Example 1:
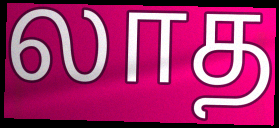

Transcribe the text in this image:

லாத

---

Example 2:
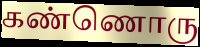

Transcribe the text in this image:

கண்ணொரு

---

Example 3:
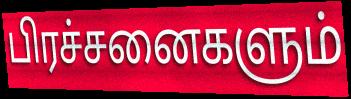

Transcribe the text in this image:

பிரச்சனைகளும்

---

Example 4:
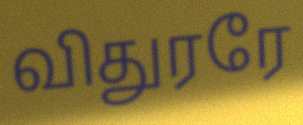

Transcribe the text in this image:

விதுரரே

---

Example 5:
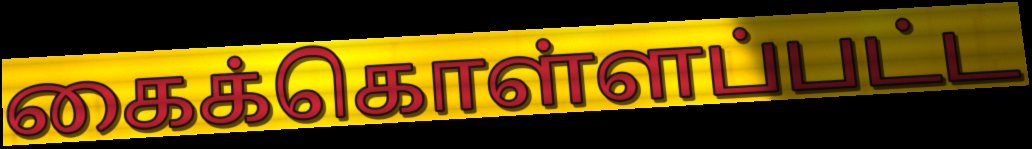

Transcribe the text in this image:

கைக்கொள்ளப்பட்ட